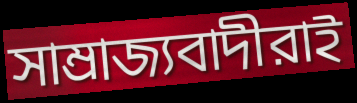
সাম্রাজ্যবাদীরাই